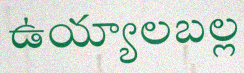
ఉయ్యాలబల్ల